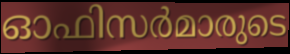
ഓഫിസർമാരുടെ